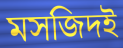
মসজিদই